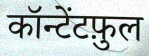
कॉन्टेंटफ़ुल